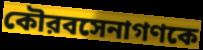
কৌরবসেনাগণকে